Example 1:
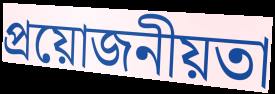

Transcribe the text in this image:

প্ৰয়োজনীয়তা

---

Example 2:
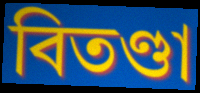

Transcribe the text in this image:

বিতণ্ডা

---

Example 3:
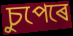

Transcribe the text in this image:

চুপেৰে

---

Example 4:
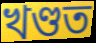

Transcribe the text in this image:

খণ্ডত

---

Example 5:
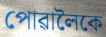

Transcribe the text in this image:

পোৱালৈকে